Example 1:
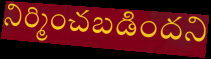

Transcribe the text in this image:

నిర్మించబడిందని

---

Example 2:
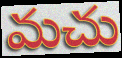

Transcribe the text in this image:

మచు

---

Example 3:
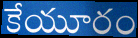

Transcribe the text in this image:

కేయూరం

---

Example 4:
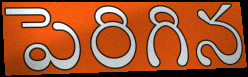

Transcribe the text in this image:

పెరిగిన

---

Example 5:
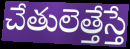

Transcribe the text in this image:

చేతులెత్తేస్తే